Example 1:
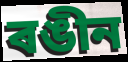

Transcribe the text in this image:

ৰঙীন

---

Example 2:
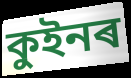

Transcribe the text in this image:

কুইনৰ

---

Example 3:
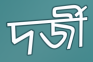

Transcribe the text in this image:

দৰ্জী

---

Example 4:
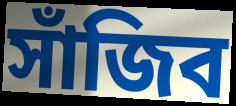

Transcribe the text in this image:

সাঁজিব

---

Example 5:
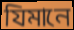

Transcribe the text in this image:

যিমানে